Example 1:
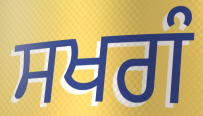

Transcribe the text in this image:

ਸਖਗੰ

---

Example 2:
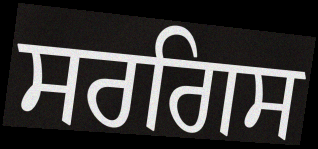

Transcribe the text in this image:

ਸਰਗਿਸ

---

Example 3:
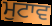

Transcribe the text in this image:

ਮੁਟਾਵ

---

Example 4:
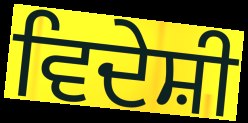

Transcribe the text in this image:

ਵਿਦੇਸ਼ੀ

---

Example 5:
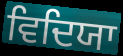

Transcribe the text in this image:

ਵਿਦਿਯਾ